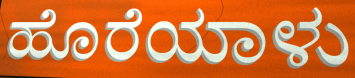
ಹೊರೆಯಾಳು